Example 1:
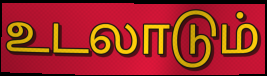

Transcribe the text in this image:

உடலாடும்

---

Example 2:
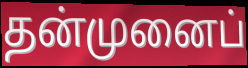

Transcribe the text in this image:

தன்முனைப்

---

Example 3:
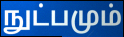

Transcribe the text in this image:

நுட்பமும்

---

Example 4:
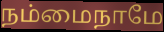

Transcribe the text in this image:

நம்மைநாமே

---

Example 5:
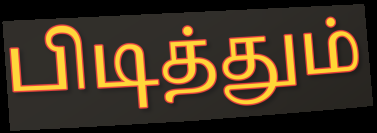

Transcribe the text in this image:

பிடித்தும்